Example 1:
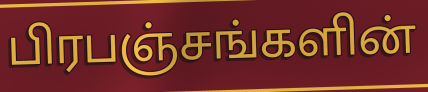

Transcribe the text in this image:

பிரபஞ்சங்களின்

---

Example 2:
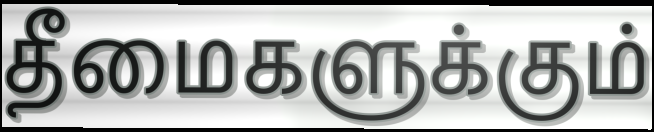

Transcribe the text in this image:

தீமைகளுக்கும்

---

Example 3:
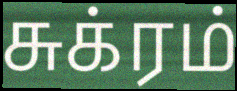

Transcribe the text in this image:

சுக்ரம்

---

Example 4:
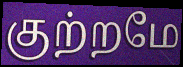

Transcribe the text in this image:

குற்றமே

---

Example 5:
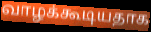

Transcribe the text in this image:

வாழக்கூடியதாக